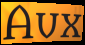
Aux